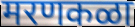
मरणकळा